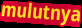
mulutnya